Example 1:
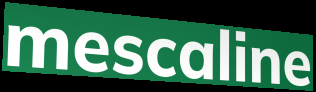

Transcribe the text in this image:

mescaline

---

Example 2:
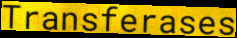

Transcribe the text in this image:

Transferases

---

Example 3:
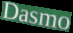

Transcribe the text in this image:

Dasmo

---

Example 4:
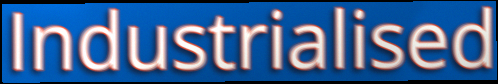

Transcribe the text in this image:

Industrialised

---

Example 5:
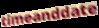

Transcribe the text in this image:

timeanddate